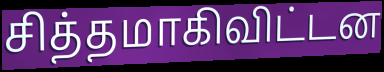
சித்தமாகிவிட்டன